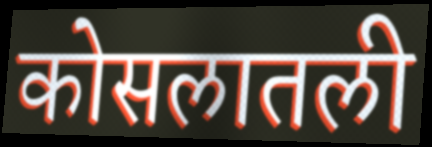
कोसलातली